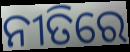
ନୀତିରେ